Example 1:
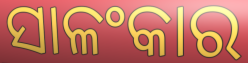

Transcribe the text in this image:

ସାଳଂକାର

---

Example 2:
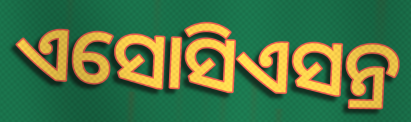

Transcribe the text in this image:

ଏସୋସିଏସନ୍ର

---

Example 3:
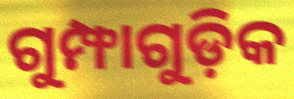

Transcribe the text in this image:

ଗୁମ୍ଫାଗୁଡ଼ିକ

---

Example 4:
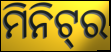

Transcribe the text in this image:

ମିନିଟ୍‌ର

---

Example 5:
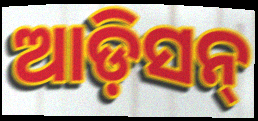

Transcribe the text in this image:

ଆଡ଼ିସନ୍